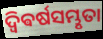
ଦ୍ଵିଵର୍ଷସମ୍ଭୃତା